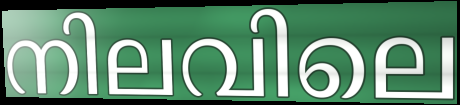
നിലവിലെ